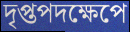
দৃপ্তপদক্ষেপে